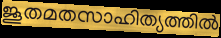
ജൂതമതസാഹിത്യത്തിൽ